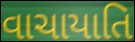
વાચાયાતિ